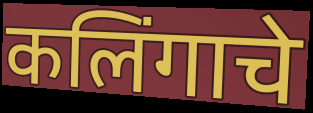
कलिंगाचे